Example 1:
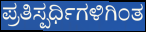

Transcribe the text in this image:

ಪ್ರತಿಸ್ಪರ್ಧಿಗಳಿಗಿಂತ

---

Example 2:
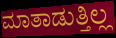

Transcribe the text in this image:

ಮಾತಾಡುತ್ತಿಲ್ಲ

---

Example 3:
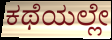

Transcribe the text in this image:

ಕಥೆಯಲ್ಲೇ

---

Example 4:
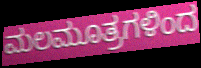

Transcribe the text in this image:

ಮಲಮೂತ್ರಗಳಿಂದ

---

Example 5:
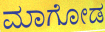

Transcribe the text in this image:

ಮಾಗೋಡ